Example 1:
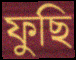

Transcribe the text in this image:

ফুছি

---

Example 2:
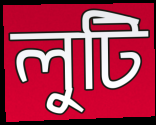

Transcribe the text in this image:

লুটি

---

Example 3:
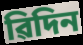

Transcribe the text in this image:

ৱিদিন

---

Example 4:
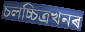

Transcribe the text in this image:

চলচ্চিত্ৰখনৰ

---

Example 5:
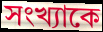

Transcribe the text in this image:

সংখ্যাকে